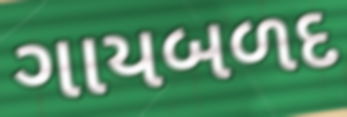
ગાયબળદ